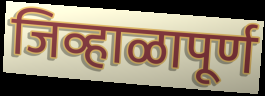
जिव्हाळापूर्ण